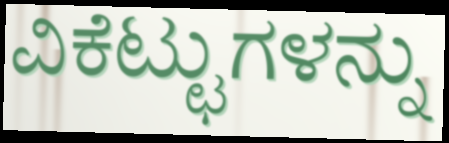
ವಿಕೆಟ್ಟುಗಳನ್ನು